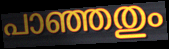
പാഞ്ഞതും